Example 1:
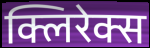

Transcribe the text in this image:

क्लिरेक्स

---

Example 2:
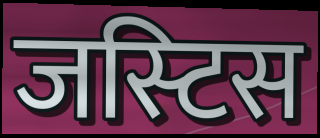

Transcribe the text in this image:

जस्‍टिस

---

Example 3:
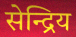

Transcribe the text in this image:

सेन्द्रिय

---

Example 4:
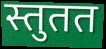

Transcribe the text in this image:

स्तुतत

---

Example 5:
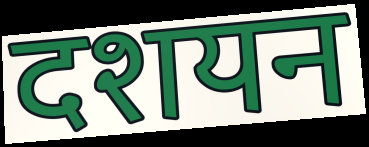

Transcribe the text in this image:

दशयन